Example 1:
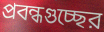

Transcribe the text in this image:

প্রবন্ধগুচ্ছের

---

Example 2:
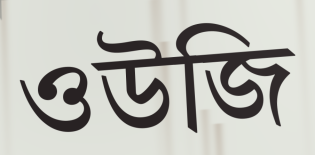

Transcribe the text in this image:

ওউজি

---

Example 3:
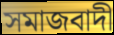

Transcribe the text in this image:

সমাজবাদী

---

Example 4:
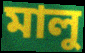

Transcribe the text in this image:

মালু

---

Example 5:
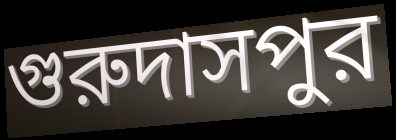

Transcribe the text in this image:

গুরুদাসপুর